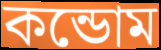
কন্ডোম